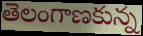
తెలంగాణకున్న